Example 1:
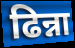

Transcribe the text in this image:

ढिन्ना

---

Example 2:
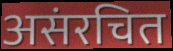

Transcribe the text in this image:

असंरचित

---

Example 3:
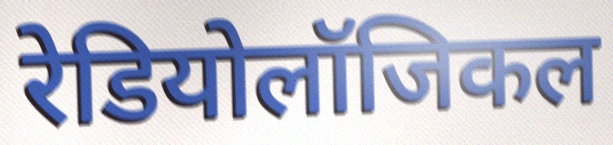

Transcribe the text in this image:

रेडियोलॉजिकल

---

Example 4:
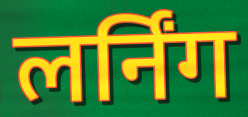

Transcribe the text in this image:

लर्निंग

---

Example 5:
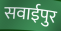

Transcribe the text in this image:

सवाईपुर